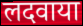
लदवाया